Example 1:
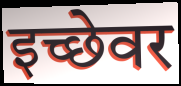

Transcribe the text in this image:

इच्छेवर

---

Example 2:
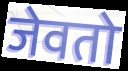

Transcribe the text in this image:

जेवतो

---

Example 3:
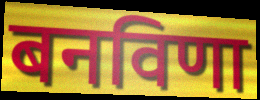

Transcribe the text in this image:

बनविणा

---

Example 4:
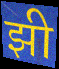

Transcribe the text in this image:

झी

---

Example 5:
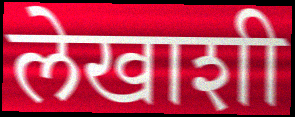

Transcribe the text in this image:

लेखाशी